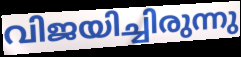
വിജയിച്ചിരുന്നു